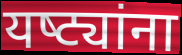
यष्ट्यांना